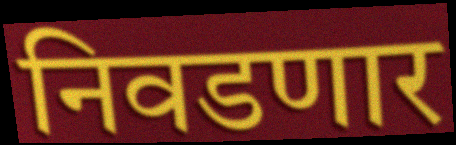
निवडणार